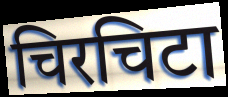
चिरचिटा